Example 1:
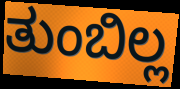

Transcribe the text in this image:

ತುಂಬಿಲ್ಲ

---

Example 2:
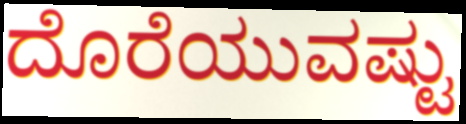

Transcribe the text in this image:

ದೊರೆಯುವಷ್ಟು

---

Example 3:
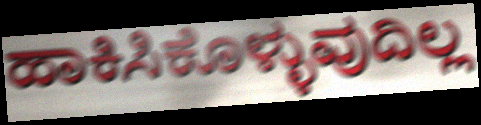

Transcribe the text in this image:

ಹಾಕಿಸಿಕೊಳ್ಳುವುದಿಲ್ಲ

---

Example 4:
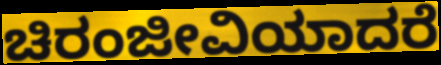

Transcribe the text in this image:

ಚಿರಂಜೀವಿಯಾದರೆ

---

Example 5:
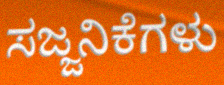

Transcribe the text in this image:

ಸಜ್ಜನಿಕೆಗಳು